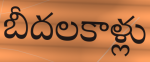
బీదలకాళ్లు